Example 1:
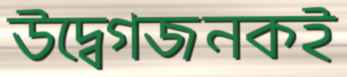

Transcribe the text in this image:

উদ্বেগজনকই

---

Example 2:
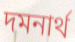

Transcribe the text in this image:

দমনার্থ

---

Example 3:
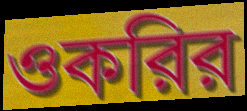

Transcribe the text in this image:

ওকরির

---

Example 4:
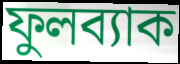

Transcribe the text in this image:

ফুলব্যাক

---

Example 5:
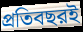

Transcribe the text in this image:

প্রতিবছরই